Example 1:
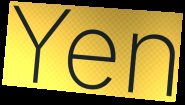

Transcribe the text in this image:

Yen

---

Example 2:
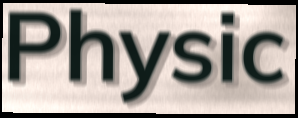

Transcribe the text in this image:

Physic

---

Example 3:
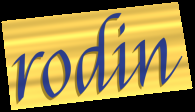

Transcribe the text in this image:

rodin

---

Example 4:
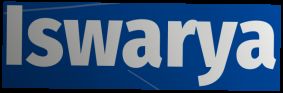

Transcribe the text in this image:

Iswarya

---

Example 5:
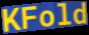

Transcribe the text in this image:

KFold